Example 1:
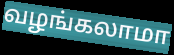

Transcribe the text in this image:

வழங்கலாமா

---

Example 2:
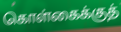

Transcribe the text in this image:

கொள்கைக்குத்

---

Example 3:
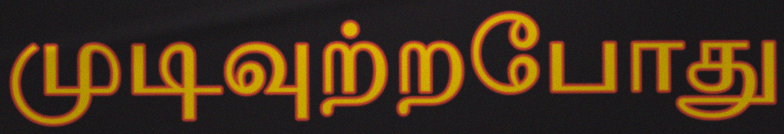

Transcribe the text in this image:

முடிவுற்றபோது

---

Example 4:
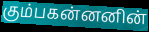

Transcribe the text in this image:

கும்பகன்னனின்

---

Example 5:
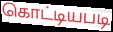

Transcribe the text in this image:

கொட்டியபடி